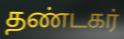
தண்டகர்